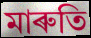
মাৰুতি